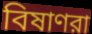
বিষাণরা